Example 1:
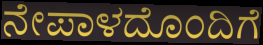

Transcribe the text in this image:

ನೇಪಾಳದೊಂದಿಗೆ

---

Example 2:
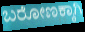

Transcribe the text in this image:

ಬರೋಣಕ್ಕಾಗಿ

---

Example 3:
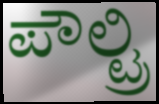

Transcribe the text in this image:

ಪೌಲ್ಟ್ರಿ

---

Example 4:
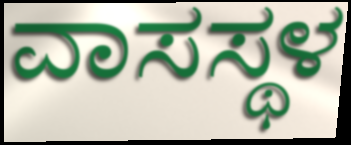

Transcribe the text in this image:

ವಾಸಸ್ಥಳ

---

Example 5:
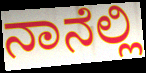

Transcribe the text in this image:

ನಾನೆಲ್ಲಿ